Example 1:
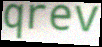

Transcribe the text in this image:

qrev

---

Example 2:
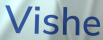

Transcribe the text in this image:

Vishe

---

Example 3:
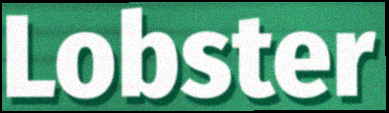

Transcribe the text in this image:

Lobster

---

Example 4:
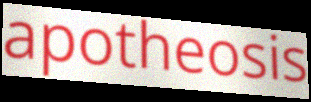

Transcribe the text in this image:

apotheosis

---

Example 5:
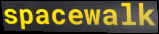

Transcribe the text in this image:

spacewalk